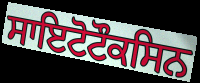
ਸਾਇਟੋਟੌਕਸਿਨ